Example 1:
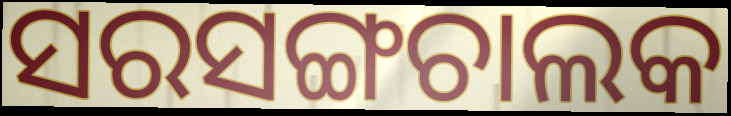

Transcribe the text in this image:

ସରସଙ୍ଗଚାଲକ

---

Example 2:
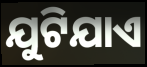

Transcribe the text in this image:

ଯୁଟିଯାଏ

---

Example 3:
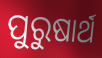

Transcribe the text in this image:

ପୁରୁଷାର୍ଥ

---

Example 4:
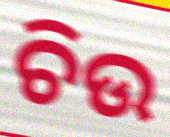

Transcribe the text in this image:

ଚିଉ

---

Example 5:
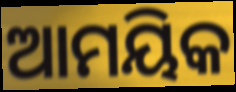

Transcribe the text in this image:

ଆମୟିକ